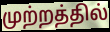
முற்றத்தில்